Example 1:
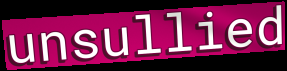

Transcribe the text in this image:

unsullied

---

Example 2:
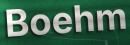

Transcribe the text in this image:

Boehm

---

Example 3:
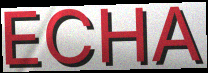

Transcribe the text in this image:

ECHA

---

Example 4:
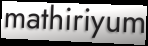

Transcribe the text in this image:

mathiriyum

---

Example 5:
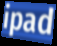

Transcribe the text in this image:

ipad